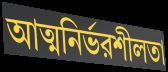
আত্মনির্ভরশীলতা